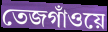
তেজগাঁওয়ে